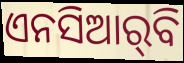
ଏନସିଆର୍‌ବି